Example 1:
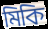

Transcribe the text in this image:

মিকি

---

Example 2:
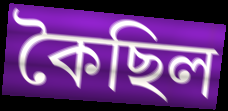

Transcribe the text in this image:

কৈছিল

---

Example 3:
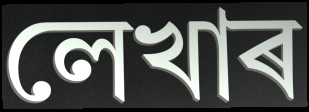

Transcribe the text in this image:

লেখাৰ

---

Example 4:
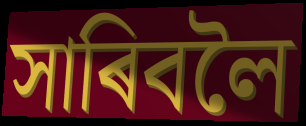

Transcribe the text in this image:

সাৰিবলৈ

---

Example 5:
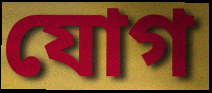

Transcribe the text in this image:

যোগ